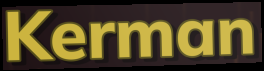
Kerman